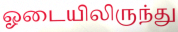
ஓடையிலிருந்து